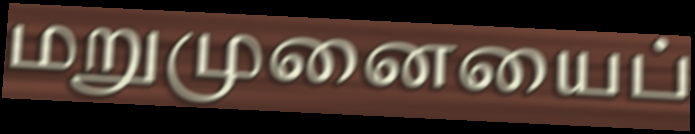
மறுமுனையைப்